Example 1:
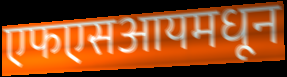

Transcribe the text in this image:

एफएसआयमधून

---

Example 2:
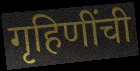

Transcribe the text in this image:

गृहिणींची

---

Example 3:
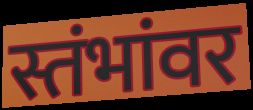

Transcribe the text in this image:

स्तंभांवर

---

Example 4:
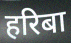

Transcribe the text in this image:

हरिबा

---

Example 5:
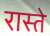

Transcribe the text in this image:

रास्ते